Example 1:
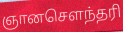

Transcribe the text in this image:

ஞானசெளந்தரி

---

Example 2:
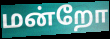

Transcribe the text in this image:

மன்றோ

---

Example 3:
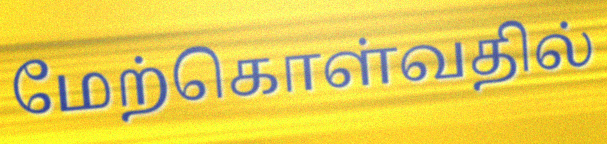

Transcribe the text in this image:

மேற்கொள்வதில்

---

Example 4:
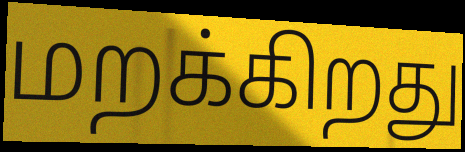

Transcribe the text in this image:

மறக்கிறது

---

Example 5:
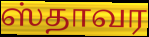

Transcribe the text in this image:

ஸ்தாவர